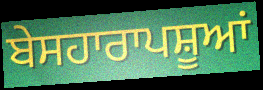
ਬੇਸਹਾਰਾਪਸ਼ੂਆਂ